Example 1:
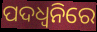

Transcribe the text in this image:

ପଦଧ୍ୱନିରେ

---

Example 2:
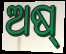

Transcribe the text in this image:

ଅଷ୍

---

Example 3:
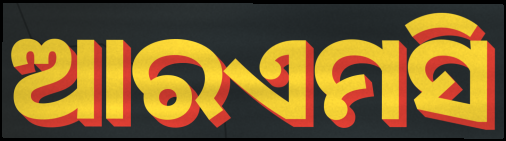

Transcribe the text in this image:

ଆରଏମସି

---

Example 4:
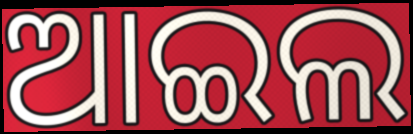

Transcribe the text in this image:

ଆଇଲ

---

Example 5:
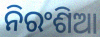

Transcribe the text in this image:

ନିରଂଶିଆ